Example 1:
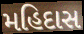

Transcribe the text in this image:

મહિદાસ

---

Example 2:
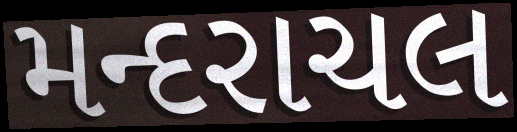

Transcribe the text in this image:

મન્દરાચલ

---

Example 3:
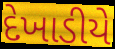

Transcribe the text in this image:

દેખાડીયે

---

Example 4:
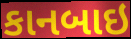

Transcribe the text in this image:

કાનબાઇ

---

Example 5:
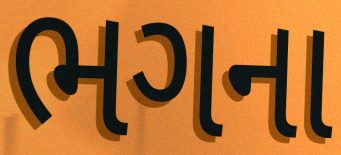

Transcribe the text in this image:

ભગના